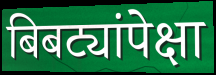
बिबट्यांपेक्षा